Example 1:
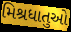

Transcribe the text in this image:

મિશ્રધાતુઓ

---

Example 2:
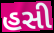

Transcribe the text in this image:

હસી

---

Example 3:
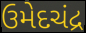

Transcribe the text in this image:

ઉમેદચંદ્ર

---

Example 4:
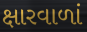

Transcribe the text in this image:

ક્ષારવાળાં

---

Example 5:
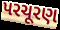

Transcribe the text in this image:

પરચૂરણ